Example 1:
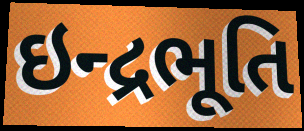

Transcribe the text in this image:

ઇન્દ્રભૂતિ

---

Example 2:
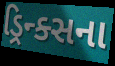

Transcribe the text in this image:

ડ્રિન્ક્સના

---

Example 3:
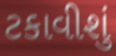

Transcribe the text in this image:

ટકાવીશું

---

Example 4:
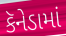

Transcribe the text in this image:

કૅનેડામાં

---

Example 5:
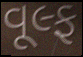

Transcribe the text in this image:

વૂલ્ફ